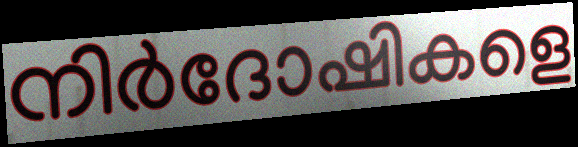
നിർദോഷികളെ